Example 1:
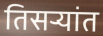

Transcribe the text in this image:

तिसर्‍यांत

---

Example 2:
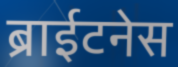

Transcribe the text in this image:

ब्राईटनेस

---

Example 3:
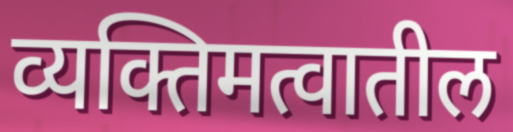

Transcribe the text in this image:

व्यक्तिमत्वातील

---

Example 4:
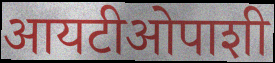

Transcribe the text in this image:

आयटीओपाशी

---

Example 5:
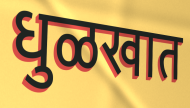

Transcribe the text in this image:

धुळखात